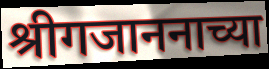
श्रीगजाननाच्या